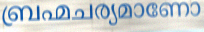
ബ്രഹ്മചര്യമാണോ